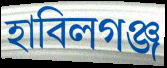
হাবিলগঞ্জ